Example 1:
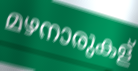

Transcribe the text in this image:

മഴനാരുകള്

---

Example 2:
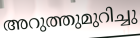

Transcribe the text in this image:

അറുത്തുമുറിച്ചു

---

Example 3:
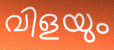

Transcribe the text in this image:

വിളയും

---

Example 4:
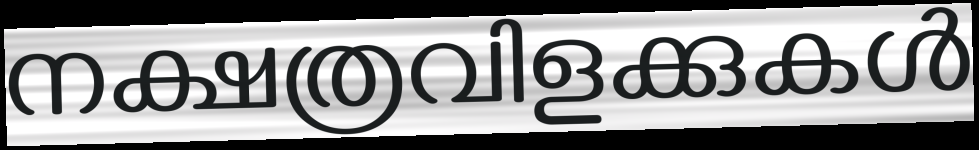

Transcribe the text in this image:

നക്ഷത്രവിളക്കുകൾ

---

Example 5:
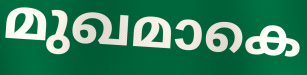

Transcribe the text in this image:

മുഖമാകെ